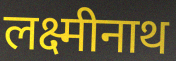
लक्ष्मीनाथ